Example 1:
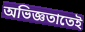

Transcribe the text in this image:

অভিজ্ঞতাতেই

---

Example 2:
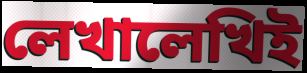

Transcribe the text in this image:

লেখালেখিই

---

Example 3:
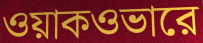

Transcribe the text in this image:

ওয়াকওভারে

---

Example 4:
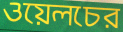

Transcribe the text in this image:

ওয়েলচের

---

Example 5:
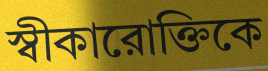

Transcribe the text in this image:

স্বীকারোক্তিকে